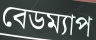
বেডম্যাপ